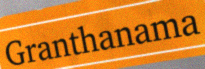
Granthanama